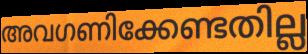
അവഗണിക്കേണ്ടതില്ല